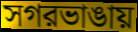
সগরভাঙায়